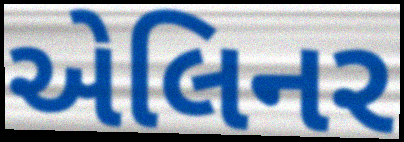
એલિનર